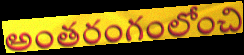
అంతరంగంలోంచి